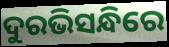
ଦୁରଭିସନ୍ଧିରେ